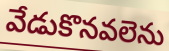
వేడుకొనవలెను